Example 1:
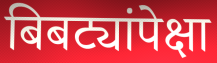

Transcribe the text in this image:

बिबट्यांपेक्षा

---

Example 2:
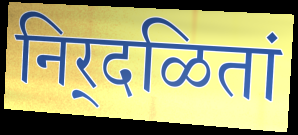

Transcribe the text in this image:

निर्दळितां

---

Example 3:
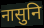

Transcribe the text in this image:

नासुनि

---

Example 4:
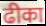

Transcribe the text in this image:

ढीका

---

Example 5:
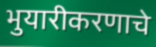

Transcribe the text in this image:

भुयारीकरणाचे